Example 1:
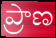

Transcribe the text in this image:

ప్రాణ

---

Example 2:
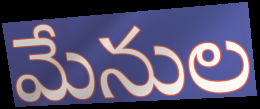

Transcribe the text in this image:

మేనుల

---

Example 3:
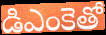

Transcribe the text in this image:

డిఎంకెతో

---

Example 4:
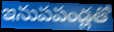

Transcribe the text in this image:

ఇనుపపండ్లతో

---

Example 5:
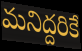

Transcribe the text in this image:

మనిద్దరికే